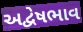
અદ્વેષભાવ